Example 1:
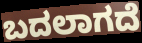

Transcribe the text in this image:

ಬದಲಾಗದೆ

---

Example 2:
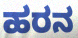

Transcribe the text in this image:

ಹರನ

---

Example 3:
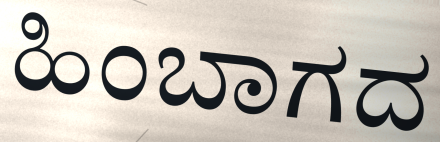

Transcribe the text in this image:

ಹಿಂಬಾಗದ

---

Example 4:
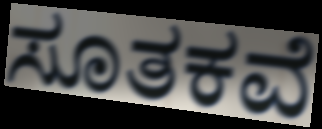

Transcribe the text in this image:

ಸೂತಕವೆ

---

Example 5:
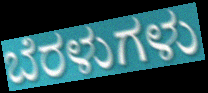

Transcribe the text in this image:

ಬೆರಳುಗಳು